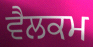
ਵੈਲਕਮ